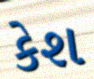
કેશ